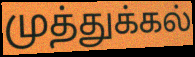
முத்துக்கல்